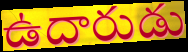
ఉదారుడు